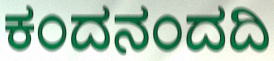
ಕಂದನಂದದಿ